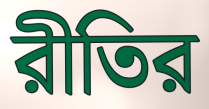
রীতির